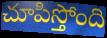
చూపిస్తోంది